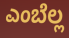
ಎಂಬೆಲ್ಲ